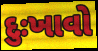
દુઃખાવો